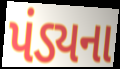
પંડ્યના